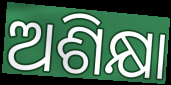
ଅଶିକ୍ଷା